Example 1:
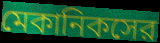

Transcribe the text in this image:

মেকানিকসের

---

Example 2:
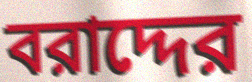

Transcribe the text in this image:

বরাদ্দের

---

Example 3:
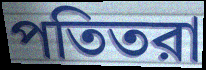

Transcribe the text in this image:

পতিতরা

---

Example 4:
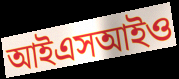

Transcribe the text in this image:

আইএসআইও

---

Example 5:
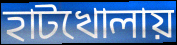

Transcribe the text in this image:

হাটখোলায়